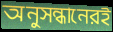
অনুসন্ধানেরই